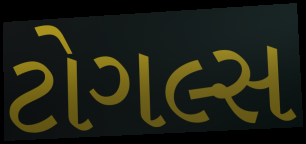
ટોગલ્સ